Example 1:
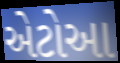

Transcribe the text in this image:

એટોઆ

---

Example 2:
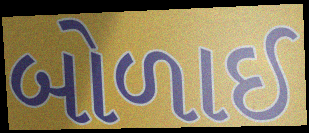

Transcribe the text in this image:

બોળાઈ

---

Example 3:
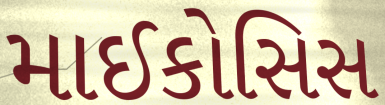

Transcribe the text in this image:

માઈકોસિસ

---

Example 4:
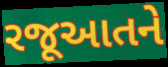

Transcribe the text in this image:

રજૂઆતને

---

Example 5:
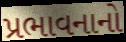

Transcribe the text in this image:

પ્રભાવનાનો